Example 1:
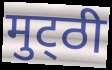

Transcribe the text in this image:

मुट्‌ठी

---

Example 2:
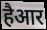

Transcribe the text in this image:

हैआर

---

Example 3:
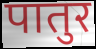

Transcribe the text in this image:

पातुर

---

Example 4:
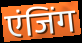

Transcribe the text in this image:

एंजिंग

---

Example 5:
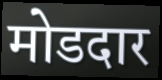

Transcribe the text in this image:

मोडदार